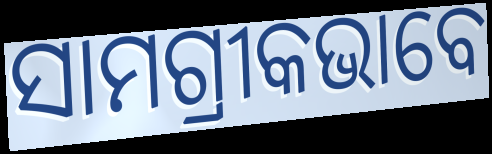
ସାମଗ୍ରୀକଭାବେ